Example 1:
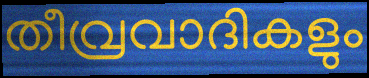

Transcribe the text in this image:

തീവ്രവാദികളും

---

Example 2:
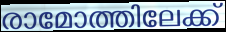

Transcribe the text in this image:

രാമോത്തിലേക്ക്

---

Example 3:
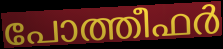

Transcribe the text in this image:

പോത്തീഫർ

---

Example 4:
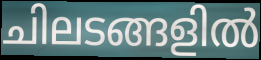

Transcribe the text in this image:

ചിലടങ്ങളിൽ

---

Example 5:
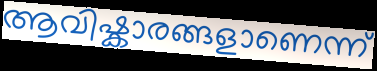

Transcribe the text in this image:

ആവിഷ്കാരങ്ങളാണെന്ന്